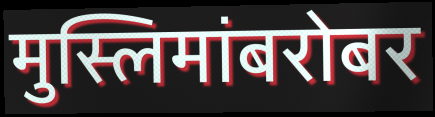
मुस्लिमांबरोबर